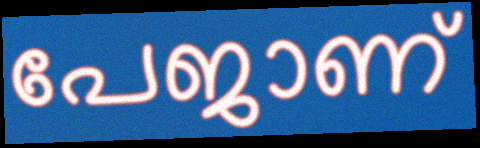
പേജാണ്